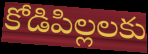
కోడిపిల్లలకు